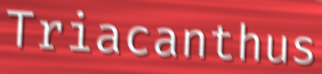
Triacanthus